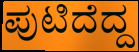
ಪುಟಿದೆದ್ದ